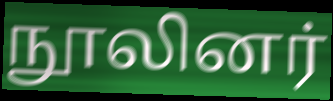
நூலினர்